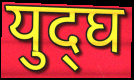
युद्घ